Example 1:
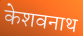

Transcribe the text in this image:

केशवनाथ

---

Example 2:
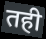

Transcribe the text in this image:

तही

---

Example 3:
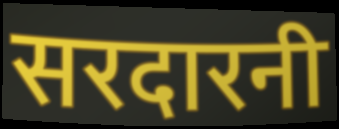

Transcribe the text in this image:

सरदारनी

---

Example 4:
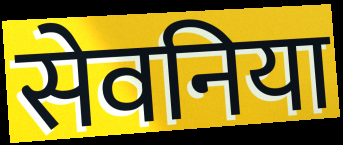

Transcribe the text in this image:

सेवनिया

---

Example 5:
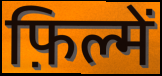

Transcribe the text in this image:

फ़िल्में